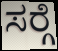
ಸರ್‍ಗೆ